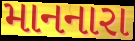
માનનારા